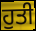
ਹੁਤੀ